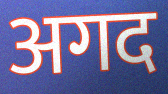
अगद